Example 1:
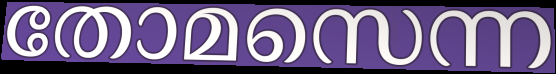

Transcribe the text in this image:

തോമസെന്ന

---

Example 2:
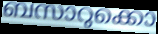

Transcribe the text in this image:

ബസാറുക്കൊ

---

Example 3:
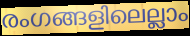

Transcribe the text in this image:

രംഗങ്ങളിലെല്ലാം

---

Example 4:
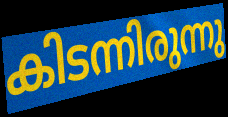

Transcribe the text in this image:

കിടന്നിരുന്നു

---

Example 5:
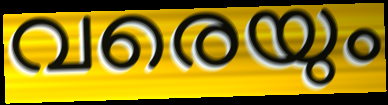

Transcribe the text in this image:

വരെയും